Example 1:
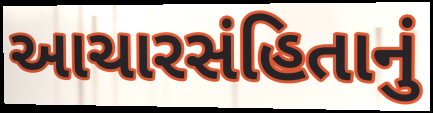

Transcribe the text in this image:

આચારસંહિતાનું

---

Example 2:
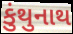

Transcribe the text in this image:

કુંથુનાથ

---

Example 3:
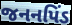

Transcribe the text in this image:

જનનપિંડ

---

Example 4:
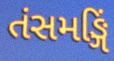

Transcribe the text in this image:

તંસમઙ્ગિં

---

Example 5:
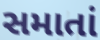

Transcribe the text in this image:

સમાતાં